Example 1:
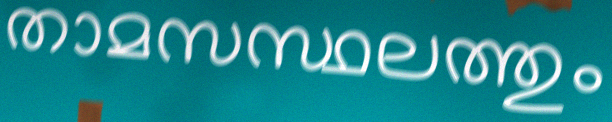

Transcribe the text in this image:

താമസസ്ഥലത്തും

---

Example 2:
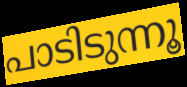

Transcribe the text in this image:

പാടിടുന്നൂ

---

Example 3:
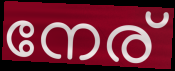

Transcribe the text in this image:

നേര്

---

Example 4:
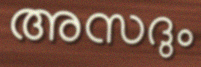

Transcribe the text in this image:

അസദും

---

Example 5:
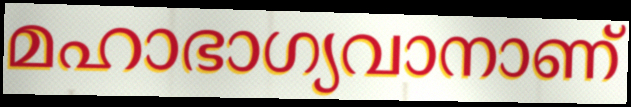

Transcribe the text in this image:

മഹാഭാഗ്യവാനാണ്